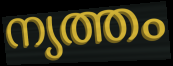
ന്യത്തം